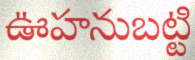
ఊహనుబట్టి